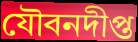
যৌবনদীপ্ত